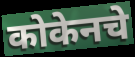
कोकेनचे